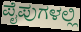
ಪೈಪುಗಳಲ್ಲಿ